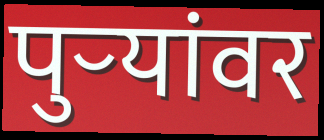
पुऱ्यांवर